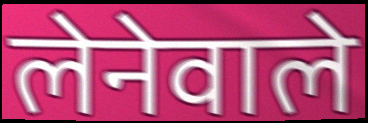
लेनेवाले